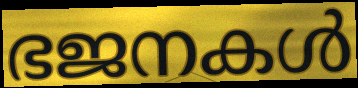
ഭജനകൾ